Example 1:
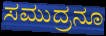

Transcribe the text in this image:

ಸಮುದ್ರನೂ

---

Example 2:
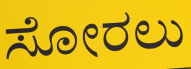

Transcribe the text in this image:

ಸೋರಲು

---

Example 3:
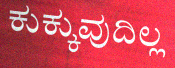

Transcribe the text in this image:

ಕುಕ್ಕುವುದಿಲ್ಲ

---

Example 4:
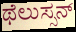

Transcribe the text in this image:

ಥೆಲುಸ್ಸನ್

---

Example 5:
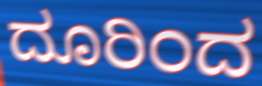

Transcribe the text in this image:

ದೂರಿಂದ